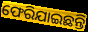
ଫେରିଯାଇଛନ୍ତି